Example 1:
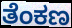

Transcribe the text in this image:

ತೆಂಕಣ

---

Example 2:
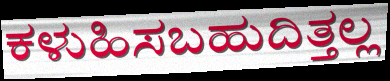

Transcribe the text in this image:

ಕಳುಹಿಸಬಹುದಿತ್ತಲ್ಲ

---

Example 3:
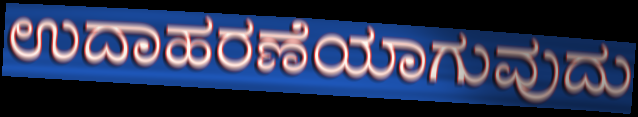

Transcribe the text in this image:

ಉದಾಹರಣೆಯಾಗುವುದು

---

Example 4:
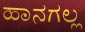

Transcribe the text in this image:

ಹಾನಗಲ್ಲ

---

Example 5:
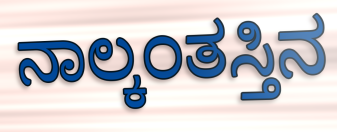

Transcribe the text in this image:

ನಾಲ್ಕಂತಸ್ತಿನ